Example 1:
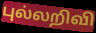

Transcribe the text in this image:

புல்லறிவி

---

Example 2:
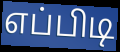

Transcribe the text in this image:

எப்பிடி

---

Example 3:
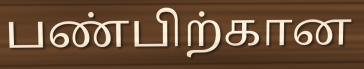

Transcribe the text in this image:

பண்பிற்கான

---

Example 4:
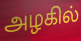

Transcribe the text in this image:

அழகில்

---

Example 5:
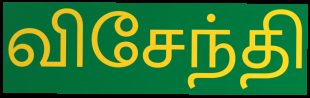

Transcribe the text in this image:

விசேந்தி